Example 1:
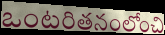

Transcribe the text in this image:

ఒంటరితనంలోంచి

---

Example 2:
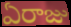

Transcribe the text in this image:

ఏరాజు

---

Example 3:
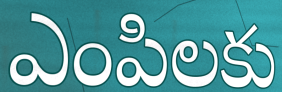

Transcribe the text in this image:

ఎంపిలకు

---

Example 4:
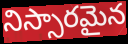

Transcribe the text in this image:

నిస్సారమైన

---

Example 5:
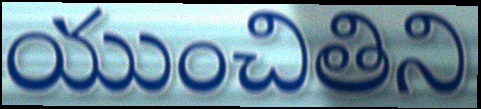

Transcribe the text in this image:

యుంచితిని